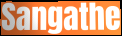
Sangathe